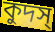
কুদস্